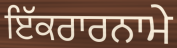
ਇੱਕਰਾਰਨਾਮੇ